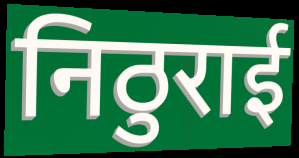
निठुराई